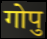
गोपु